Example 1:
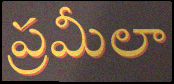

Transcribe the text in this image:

ప్రమీలా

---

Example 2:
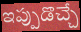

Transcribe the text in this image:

ఇప్పుడొచ్చే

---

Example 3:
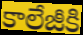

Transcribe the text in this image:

కాలేజీకి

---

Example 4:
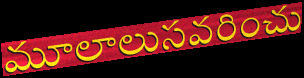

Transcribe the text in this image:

మూలాలుసవరించు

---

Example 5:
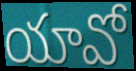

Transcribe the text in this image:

యావో